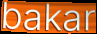
bakar